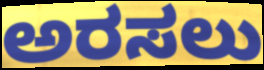
ಅರಸಲು